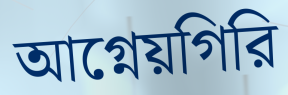
আগ্নেয়গিরি